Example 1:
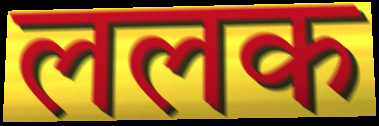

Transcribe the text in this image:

ललक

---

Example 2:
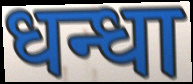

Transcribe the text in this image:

धन्धा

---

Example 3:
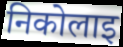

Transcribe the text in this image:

निकोलाइ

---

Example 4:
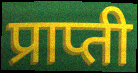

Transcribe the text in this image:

प्राप्ती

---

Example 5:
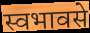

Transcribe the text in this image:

स्वभावसे